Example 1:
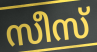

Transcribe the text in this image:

സീസ്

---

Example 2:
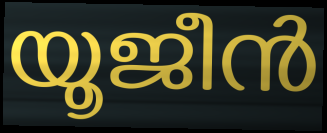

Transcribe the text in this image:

യൂജീൻ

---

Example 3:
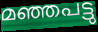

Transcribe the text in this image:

മഞ്ഞപട്ടു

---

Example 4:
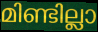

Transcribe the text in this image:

മിണ്ടില്ലാ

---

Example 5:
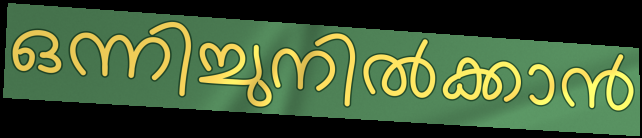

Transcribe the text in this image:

ഒന്നിച്ചുനിൽക്കാൻ